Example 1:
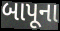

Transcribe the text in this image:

બાપૂના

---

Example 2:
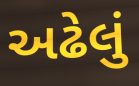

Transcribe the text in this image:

અઢેલું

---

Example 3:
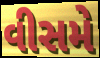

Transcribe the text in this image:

વીસમે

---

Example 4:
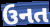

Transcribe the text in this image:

ઉનત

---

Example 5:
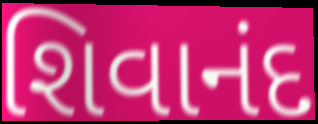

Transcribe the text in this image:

શિવાનંદ